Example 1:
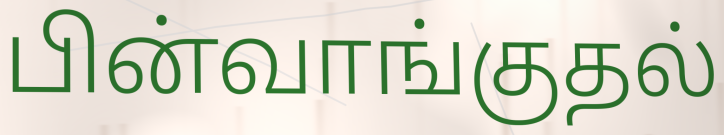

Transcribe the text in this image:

பின்வாங்குதல்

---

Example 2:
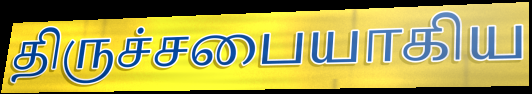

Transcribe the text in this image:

திருச்சபையாகிய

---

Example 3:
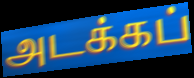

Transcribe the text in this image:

அடக்கப்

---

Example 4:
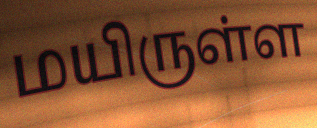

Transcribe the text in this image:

மயிருள்ள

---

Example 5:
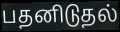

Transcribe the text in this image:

பதனிடுதல்